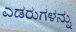
ಎಡರುಗಳನ್ನು